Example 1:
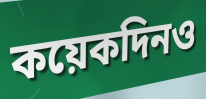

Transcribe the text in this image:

কয়েকদিনও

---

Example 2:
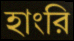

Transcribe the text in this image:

হাংরি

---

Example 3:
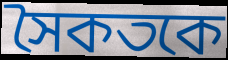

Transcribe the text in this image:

সৈকতকে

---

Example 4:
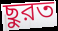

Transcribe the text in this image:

ছুরত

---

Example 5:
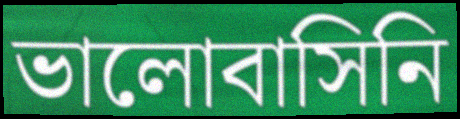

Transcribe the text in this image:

ভালোবাসিনি